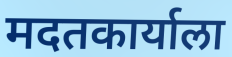
मदतकार्याला